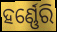
ହର୍ଣ୍ଣେରି